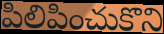
పిలిపించుకొని